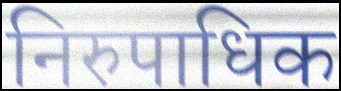
निरुपाधिक